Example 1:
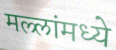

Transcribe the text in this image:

मल्लांमध्ये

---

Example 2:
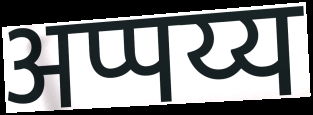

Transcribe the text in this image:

अप्पय्य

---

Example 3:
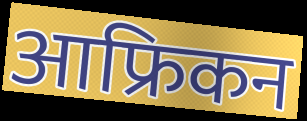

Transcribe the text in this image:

आफ्रिकन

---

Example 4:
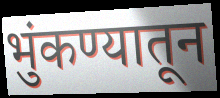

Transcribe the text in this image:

भुंकण्यातून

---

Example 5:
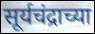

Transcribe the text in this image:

सूर्यचंद्राच्या